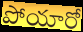
పోయారో